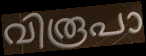
വിരൂപാ